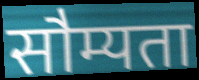
सौम्यता